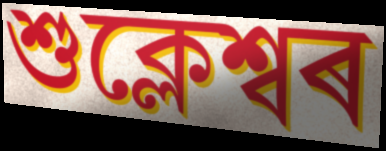
শুক্লেশ্বৰ